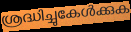
ശ്രദ്ധിച്ചുകേൾക്കുക